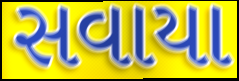
સવાયા